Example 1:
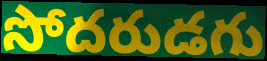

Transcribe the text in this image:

సోదరుడగు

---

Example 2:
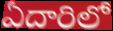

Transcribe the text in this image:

ఏదారిలో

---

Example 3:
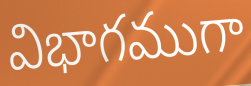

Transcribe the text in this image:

విభాగముగా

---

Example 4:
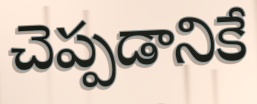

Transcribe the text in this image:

చెప్పడానికే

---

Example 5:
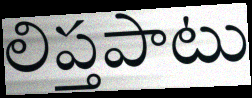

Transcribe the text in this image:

లిప్తపాటు